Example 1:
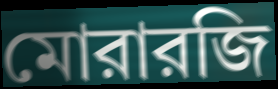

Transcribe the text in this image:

মোরারজি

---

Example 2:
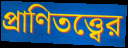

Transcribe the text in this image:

প্রাণিতত্ত্বের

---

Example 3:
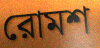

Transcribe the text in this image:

রোমশ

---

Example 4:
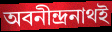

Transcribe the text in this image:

অবনীন্দ্রনাথই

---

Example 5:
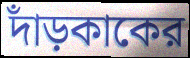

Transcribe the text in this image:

দাঁড়কাকের